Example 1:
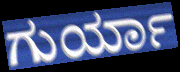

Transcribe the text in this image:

ಗುರ್ಯಾ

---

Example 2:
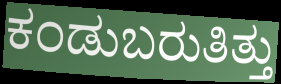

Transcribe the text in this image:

ಕಂಡುಬರುತಿತ್ತು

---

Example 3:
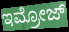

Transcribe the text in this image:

ಇಮ್ರೋಜ್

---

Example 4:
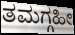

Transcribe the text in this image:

ತಮಗ್ಗಹೀ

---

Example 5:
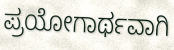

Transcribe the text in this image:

ಪ್ರಯೋಗಾರ್ಥವಾಗಿ